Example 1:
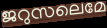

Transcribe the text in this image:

ജറുസലെമേ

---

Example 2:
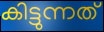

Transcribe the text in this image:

കിട്ടുന്നത്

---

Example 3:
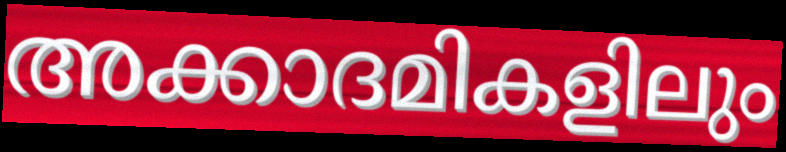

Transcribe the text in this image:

അക്കാദമികളിലും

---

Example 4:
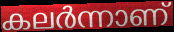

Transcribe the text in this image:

കലർന്നാണ്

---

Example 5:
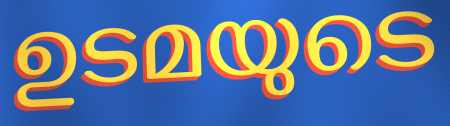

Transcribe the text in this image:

ഉടമയുടെ